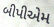
બીપીએમ